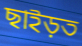
ছাইড়ত